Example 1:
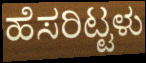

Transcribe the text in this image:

ಹೆಸರಿಟ್ಟಳು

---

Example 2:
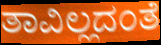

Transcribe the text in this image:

ತಾವಿಲ್ಲದಂತೆ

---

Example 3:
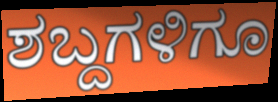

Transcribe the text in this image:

ಶಬ್ದಗಳಿಗೂ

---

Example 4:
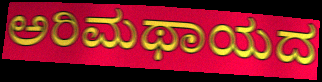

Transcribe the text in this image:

ಅರಿಮಥಾಯದ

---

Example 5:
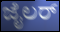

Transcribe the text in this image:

ಜೈಲರ್